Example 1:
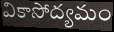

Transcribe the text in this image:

వికాసోద్యమం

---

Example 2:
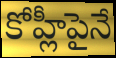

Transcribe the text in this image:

కోహ్లీపైనే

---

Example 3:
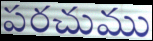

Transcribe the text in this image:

పరచుము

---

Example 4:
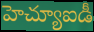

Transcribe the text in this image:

హెచ్యూఐడీ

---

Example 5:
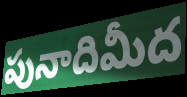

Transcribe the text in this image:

పునాదిమీద